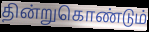
தின்றுகொண்டும்